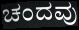
ಚಂದವು